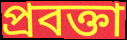
প্ৰবক্তা